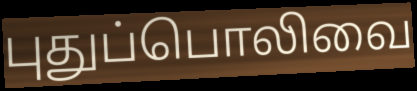
புதுப்பொலிவை